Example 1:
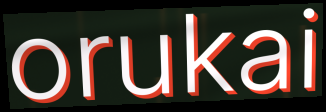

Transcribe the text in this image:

orukai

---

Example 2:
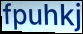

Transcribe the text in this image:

fpuhkj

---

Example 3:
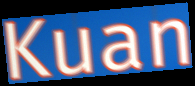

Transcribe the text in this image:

Kuan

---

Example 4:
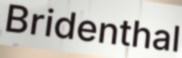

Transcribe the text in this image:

Bridenthal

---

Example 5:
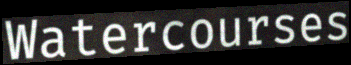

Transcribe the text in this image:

Watercourses